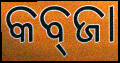
କବ୍‌ଜା